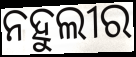
ନହୁଲୀର